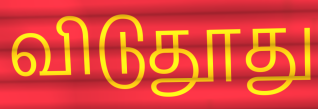
விடுதூது